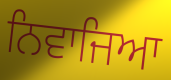
ਨਿਵਾਜਿਆ